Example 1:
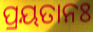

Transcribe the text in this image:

ପ୍ରୟତାନଃ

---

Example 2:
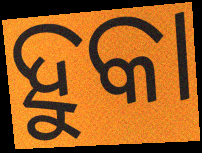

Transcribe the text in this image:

ହୁକା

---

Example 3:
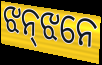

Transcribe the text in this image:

ଝନ୍‌ଝନେ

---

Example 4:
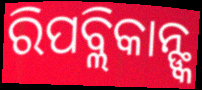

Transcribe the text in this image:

ରିପବ୍ଲିକାନ୍ଙ୍କ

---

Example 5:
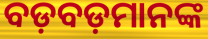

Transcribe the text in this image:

ବଡ଼ବଡ଼ମାନଙ୍କ